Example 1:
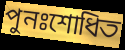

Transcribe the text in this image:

পুনঃশোধিত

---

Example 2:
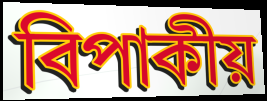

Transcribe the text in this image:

বিপাকীয়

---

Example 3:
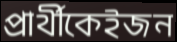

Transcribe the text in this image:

প্ৰাৰ্থীকেইজন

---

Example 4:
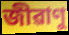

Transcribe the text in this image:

জীৱাণু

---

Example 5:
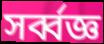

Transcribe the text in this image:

সৰ্ব্বজ্ঞ